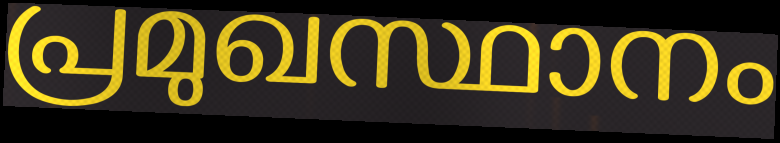
പ്രമുഖസ്ഥാനം